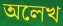
অলেখ